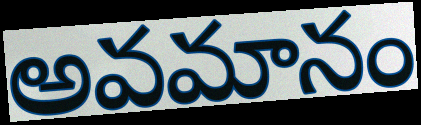
అవమానం